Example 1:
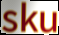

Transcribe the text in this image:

sku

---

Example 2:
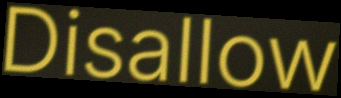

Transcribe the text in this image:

Disallow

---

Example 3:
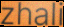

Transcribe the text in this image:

zhali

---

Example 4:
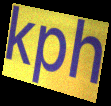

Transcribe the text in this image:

kph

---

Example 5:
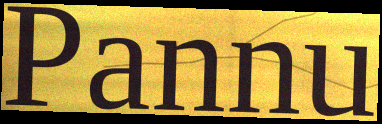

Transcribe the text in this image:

Pannu